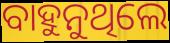
ବାହୁନୁଥିଲେ